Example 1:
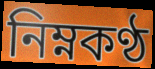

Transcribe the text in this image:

নিম্নকণ্ঠ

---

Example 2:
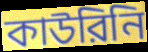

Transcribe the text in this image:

কাউরিনি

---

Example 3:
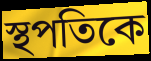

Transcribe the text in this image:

স্থপতিকে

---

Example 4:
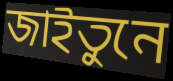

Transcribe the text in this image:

জাইতুনে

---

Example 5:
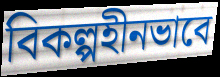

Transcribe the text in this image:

বিকল্পহীনভাবে